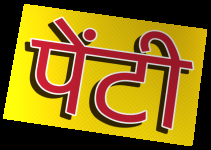
पेंटी